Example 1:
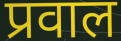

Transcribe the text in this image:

प्रवाल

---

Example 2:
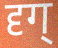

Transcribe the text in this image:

दृग्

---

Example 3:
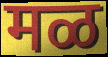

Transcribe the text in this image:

मळ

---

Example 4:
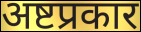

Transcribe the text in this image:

अष्टप्रकार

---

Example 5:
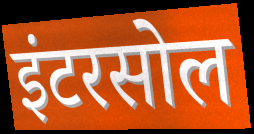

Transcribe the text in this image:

इंटरसोल